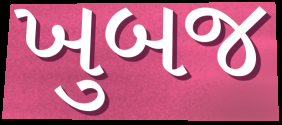
ખુબજ